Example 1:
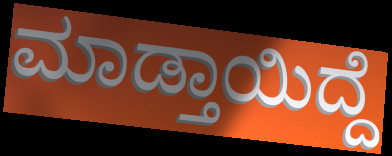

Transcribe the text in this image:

ಮಾಡ್ತಾಯಿದ್ದೆ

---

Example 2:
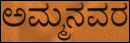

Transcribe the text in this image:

ಅಮ್ಮನವರ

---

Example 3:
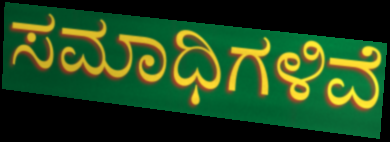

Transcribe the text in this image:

ಸಮಾಧಿಗಳಿವೆ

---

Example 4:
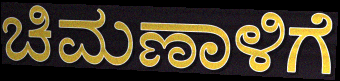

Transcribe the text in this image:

ಚಿಮಣಾಳಿಗೆ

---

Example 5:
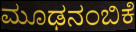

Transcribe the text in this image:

ಮೂಢನಂಬಿಕೆ